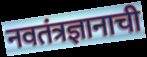
नवतंत्रज्ञानाची